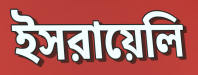
ইসরায়েলি